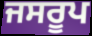
ਜਸਰੂਪ